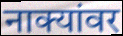
नाक्यांवर